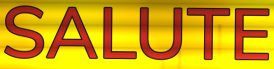
SALUTE